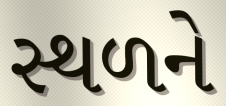
સ્થળને